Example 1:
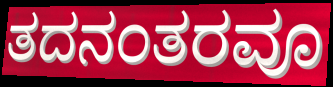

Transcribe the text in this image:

ತದನಂತರವೂ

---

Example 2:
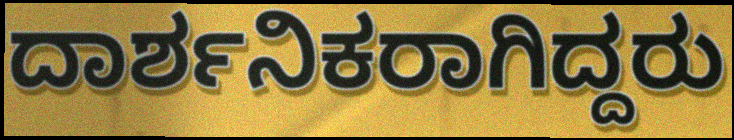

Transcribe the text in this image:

ದಾರ್ಶನಿಕರಾಗಿದ್ದರು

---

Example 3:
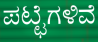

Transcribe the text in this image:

ಪಟ್ಟೆಗಳಿವೆ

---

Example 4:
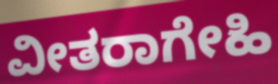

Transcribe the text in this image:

ವೀತರಾಗೇಹಿ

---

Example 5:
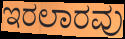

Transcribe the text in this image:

ಇರಲಾರವು